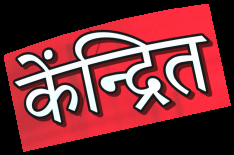
केंन्द्रित